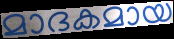
മാദകമായ